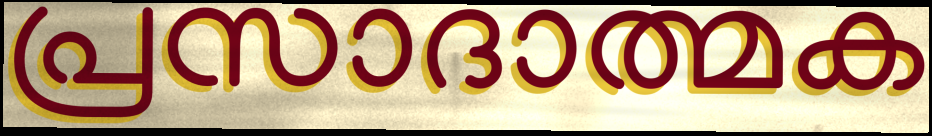
പ്രസാദാത്മക